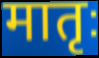
मातृः